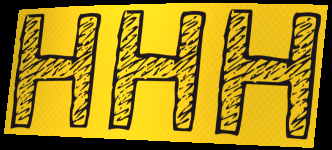
HHH